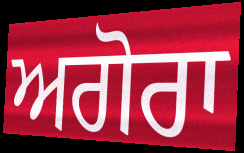
ਅਗੋਰਾ